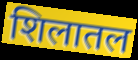
शिलातल